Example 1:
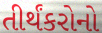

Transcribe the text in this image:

તીર્થંકરોનો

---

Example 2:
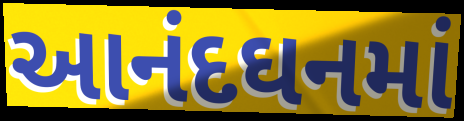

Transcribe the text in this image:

આનંદઘનમાં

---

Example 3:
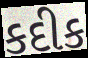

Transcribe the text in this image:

કદીક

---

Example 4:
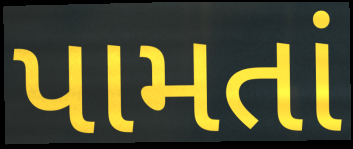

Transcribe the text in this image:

પામતાં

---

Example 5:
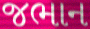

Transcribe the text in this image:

જભાન